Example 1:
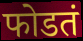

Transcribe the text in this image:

फोडतं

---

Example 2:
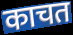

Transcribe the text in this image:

काचत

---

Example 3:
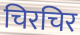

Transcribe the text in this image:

चिरचिर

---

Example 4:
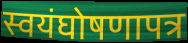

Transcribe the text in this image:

स्वयंघोषणापत्र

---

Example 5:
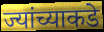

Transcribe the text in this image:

ज्यांच्याकडे